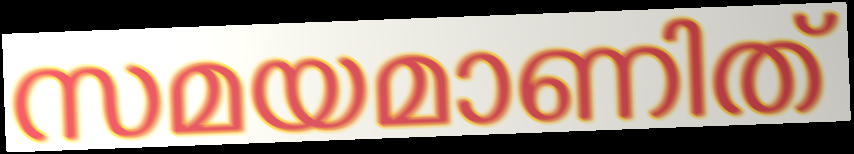
സമയമാണിത്